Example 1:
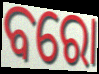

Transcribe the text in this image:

ବରୋ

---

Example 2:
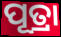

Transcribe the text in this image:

ପୂତ୍ରା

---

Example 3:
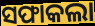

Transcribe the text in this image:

ସଫାକଲା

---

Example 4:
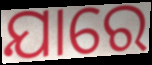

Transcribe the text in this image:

ଯାରେ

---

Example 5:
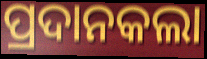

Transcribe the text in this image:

ପ୍ରଦାନକଲା